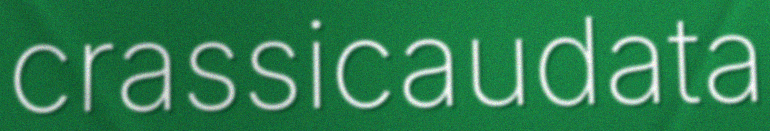
crassicaudata